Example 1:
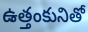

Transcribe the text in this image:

ఉత్తంకునితో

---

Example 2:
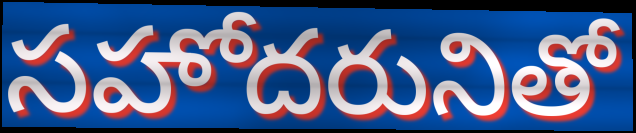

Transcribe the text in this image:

సహోదరునితో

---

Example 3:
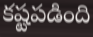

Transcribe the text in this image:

కష్టపడింది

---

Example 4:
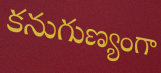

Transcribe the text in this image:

కనుగుణ్యంగా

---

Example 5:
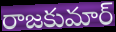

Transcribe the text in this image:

రాజకుమార్